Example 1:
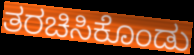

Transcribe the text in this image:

ತರಚಿಸಿಕೊಂಡು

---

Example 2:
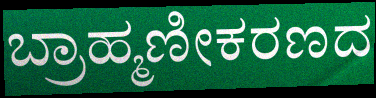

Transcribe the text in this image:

ಬ್ರಾಹ್ಮಣೀಕರಣದ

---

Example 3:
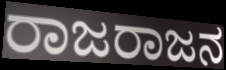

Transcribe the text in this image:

ರಾಜರಾಜನ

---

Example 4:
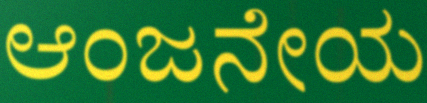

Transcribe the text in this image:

ಆಂಜನೇಯ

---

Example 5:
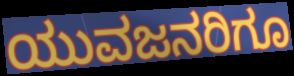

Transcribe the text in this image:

ಯುವಜನರಿಗೂ